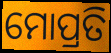
ମୋପ୍ରତି